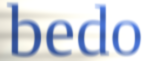
bedo